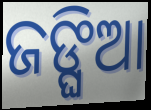
ଜଙ୍ଘିଆ